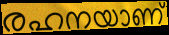
രഹനയാണ്